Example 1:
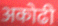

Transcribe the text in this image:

अकोढी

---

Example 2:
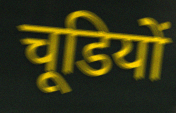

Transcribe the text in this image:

चूडियों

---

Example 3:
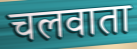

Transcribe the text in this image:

चलवाता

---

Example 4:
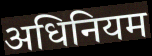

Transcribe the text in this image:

अधिनियम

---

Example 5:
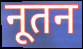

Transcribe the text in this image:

नूतन